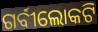
ଗର୍ବୀଲୋକଟି